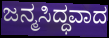
ಜನ್ಮಸಿದ್ಧವಾದ